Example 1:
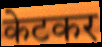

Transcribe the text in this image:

केटकर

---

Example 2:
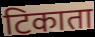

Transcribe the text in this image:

टिकाता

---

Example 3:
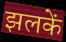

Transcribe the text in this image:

झलकें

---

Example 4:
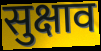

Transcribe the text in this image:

सुक्षाव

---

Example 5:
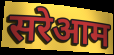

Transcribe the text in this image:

सरेआम